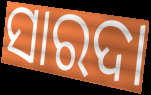
ସାରଦା